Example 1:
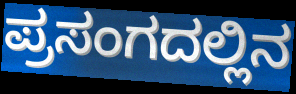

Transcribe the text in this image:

ಪ್ರಸಂಗದಲ್ಲಿನ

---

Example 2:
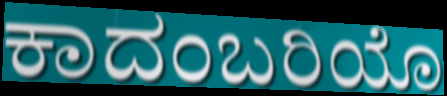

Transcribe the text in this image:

ಕಾದಂಬರಿಯೊ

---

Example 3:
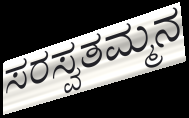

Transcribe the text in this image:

ಸರಸ್ವತಮ್ಮನ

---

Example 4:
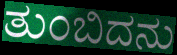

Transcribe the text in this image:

ತುಂಬಿದನು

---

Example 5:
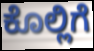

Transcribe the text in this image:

ಕೊಲ್ಲಿಗೆ